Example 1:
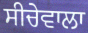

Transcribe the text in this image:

ਸੀਚੇਵਾਲਾ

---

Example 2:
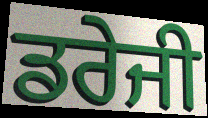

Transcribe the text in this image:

ਡਰੇਜੀ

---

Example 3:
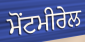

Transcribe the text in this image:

ਮੋਂਟਮੀਰੇਲ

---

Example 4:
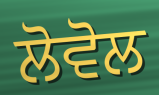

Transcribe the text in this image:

ਲੋਵੋਲ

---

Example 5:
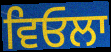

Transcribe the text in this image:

ਵਿਓਲਾ